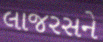
લાજરસને